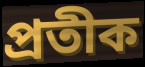
প্ৰতীক